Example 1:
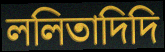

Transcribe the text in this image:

ললিতাদিদি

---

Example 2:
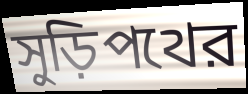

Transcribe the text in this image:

সুড়িপথের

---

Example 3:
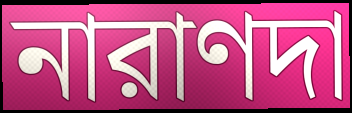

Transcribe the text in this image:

নারাণদা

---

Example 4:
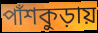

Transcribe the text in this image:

পাঁশকুড়ায়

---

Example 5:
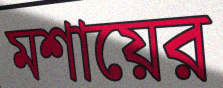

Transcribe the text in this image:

মশায়ের